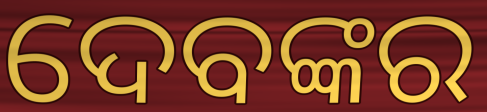
ଦେବଙ୍କର